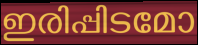
ഇരിപ്പിടമോ